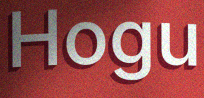
Hogu